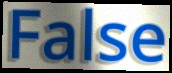
False